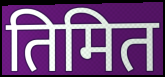
तिमित